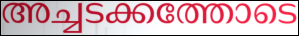
അച്ചടക്കത്തോടെ